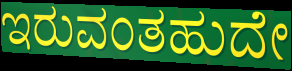
ಇರುವಂತಹುದೇ